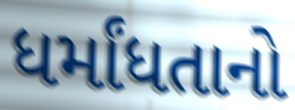
ધર્માંધતાનો